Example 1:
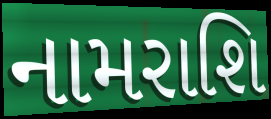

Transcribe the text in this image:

નામરાશિ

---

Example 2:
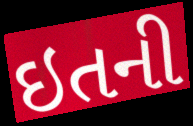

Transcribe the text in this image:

ઇતની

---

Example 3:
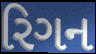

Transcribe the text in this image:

રિગન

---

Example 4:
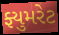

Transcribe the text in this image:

ફ્યુમરેટ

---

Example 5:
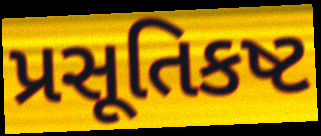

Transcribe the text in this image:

પ્રસૂતિકષ્ટ